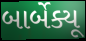
બાર્બેક્યૂ